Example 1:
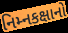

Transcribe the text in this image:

નિમ્નકક્ષાનો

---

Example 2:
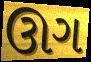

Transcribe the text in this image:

ઊગ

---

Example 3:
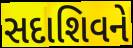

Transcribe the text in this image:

સદાશિવને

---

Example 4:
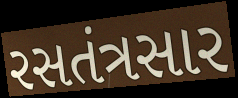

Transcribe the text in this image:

રસતંત્રસાર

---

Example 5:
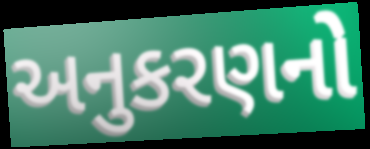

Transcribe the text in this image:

અનુકરણનો